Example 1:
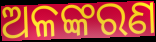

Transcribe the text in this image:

ଅଳଙ୍କରଣ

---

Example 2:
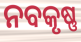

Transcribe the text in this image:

ନବକୃଷ୍ଣ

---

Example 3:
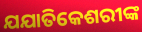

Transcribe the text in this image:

ଯଯାତିକେଶରୀଙ୍କ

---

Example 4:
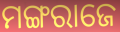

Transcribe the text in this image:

ମଙ୍ଗରାଜେ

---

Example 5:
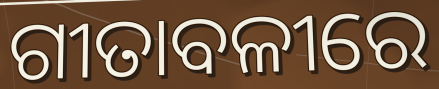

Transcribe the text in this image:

ଗୀତାବଳୀରେ